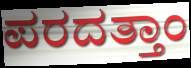
ಪರದತ್ತಾಂ